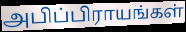
அபிப்பிராயங்கள்